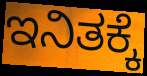
ಇನಿತಕ್ಕೆ